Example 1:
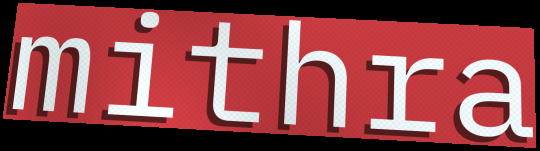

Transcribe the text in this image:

mithra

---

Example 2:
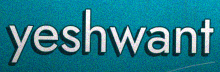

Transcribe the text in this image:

yeshwant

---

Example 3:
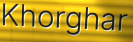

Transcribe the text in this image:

Khorghar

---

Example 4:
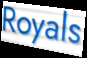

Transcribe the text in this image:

Royals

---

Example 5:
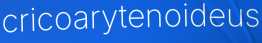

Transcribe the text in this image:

cricoarytenoideus